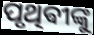
ପୃଥିଵୀଙ୍କୁ